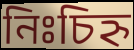
নিঃচিহ্ন